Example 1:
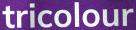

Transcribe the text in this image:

tricolour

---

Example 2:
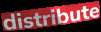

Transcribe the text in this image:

distribute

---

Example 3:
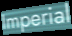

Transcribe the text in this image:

Imperial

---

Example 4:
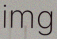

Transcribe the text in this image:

img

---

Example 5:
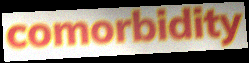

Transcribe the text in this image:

comorbidity